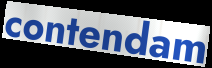
contendam